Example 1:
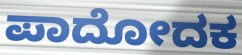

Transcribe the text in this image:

ಪಾದೋದಕ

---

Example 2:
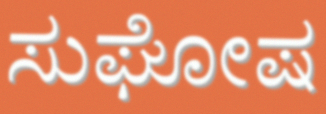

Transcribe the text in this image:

ಸುಘೋಷ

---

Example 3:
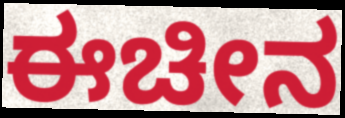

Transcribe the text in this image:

ಈಚೀನ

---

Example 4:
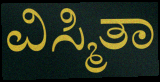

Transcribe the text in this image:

ವಿಸ್ಮಿತಾ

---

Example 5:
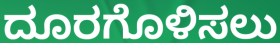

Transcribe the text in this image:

ದೂರಗೊಳಿಸಲು